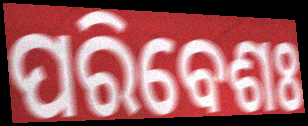
ପରିବେଶଃ